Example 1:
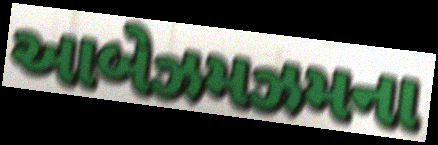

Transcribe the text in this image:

આબેઝમઝમના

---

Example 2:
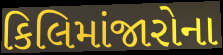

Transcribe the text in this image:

કિલિમાંજારોના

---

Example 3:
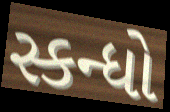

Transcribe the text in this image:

સ્કન્ધો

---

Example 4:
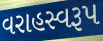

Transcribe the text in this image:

વરાહસ્વરૂપ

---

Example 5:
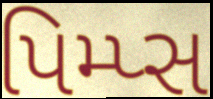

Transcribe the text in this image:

પિમ્પ્સ